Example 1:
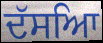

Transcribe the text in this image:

ਦੱਸਆਿ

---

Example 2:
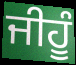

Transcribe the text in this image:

ਜੀਹੂੰ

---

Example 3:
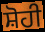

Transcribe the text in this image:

ਸ਼ੋਹੀ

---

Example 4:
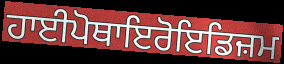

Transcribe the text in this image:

ਹਾਈਪੋਥਾਇਰੋਇਡਿਜ਼ਮ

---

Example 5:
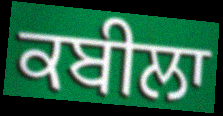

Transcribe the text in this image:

ਕਬੀਲਾ